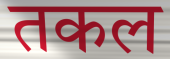
तकल